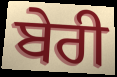
ਬੇਰੀ